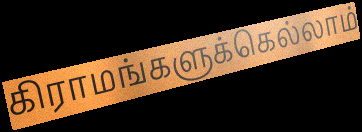
கிராமங்களுக்கெல்லாம்